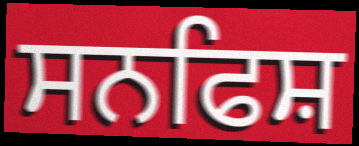
ਸਨਫਿਸ਼